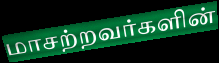
மாசற்றவர்களின்